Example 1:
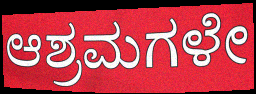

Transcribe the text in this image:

ಆಶ್ರಮಗಳೇ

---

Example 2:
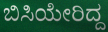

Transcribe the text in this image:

ಬಿಸಿಯೇರಿದ್ದ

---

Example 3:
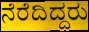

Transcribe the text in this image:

ನೆರೆದಿದ್ದರು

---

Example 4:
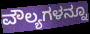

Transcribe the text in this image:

ವೌಲ್ಯಗಳನ್ನೂ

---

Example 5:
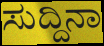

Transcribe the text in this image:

ಸುದ್ದಿನಾ